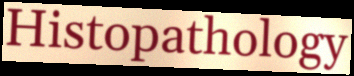
Histopathology